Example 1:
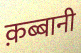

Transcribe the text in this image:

क़ब्बानी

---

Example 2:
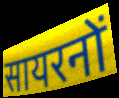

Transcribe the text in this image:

सायरनों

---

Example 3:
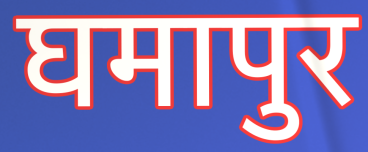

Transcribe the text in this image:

घमापुर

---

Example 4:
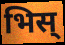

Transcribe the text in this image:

भिस्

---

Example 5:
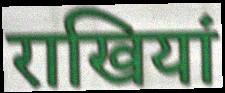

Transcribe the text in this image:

राखियां